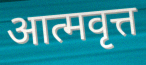
आत्मवृत्त